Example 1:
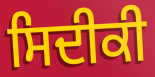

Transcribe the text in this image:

ਸਿਦੀਕੀ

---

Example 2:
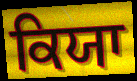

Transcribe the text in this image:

ਕਿਯਾ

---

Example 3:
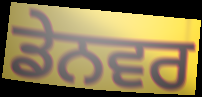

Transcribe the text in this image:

ਡੇਨਵਰ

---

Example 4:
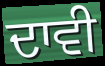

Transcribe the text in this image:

ਦਾਵੀ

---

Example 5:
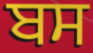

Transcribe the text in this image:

ਬਸ